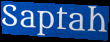
Saptah